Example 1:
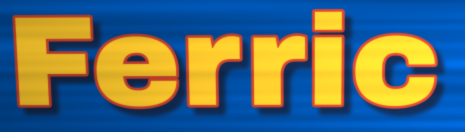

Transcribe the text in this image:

Ferric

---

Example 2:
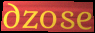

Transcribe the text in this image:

dzose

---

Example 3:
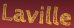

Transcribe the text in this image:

Laville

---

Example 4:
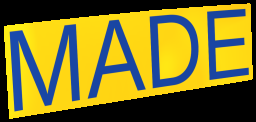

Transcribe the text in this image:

MADE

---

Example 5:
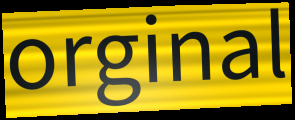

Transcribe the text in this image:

orginal